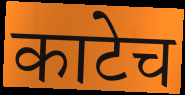
काटेच